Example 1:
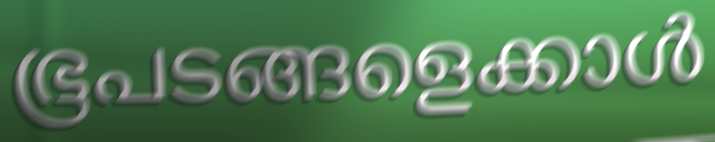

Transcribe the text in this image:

ഭൂപടങ്ങളെക്കാൾ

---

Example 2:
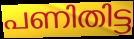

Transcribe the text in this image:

പണിതിട്ട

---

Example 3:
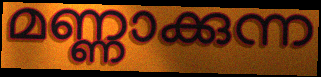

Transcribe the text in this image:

മണ്ണാക്കുന്ന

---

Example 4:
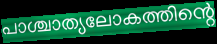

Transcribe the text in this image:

പാശ്ചാത്യലോകത്തിന്റെ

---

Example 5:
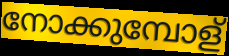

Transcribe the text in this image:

നോക്കുമ്പോള്